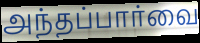
அந்தப்பார்வை